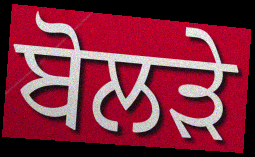
ਬੋਲੜੇ